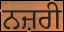
ਨਜ਼ਰੀ